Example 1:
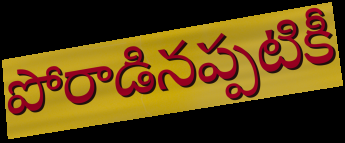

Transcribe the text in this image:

పోరాడినప్పటికీ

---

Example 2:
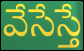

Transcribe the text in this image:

వేసేస్తే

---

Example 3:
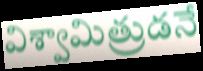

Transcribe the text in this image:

విశ్వామిత్రుడనే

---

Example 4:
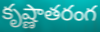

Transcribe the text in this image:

కృష్ణాతరంగ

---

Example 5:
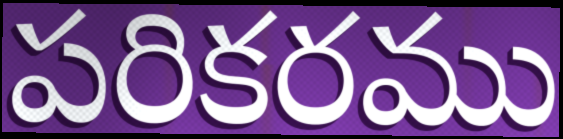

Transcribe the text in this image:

పరికరము